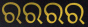
ରରରର